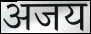
अजय